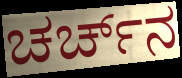
ಚರ್ಚ್‌ನ